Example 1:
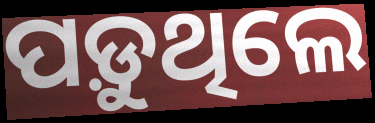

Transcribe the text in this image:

ପଡ଼ୁଥିଲେ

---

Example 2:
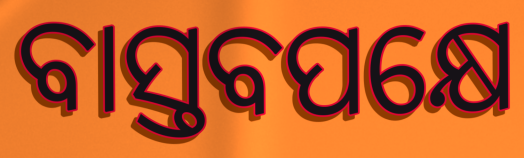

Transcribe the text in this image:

ବାସ୍ତବପକ୍ଷେ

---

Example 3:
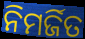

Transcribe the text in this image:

ନିମର୍ଜିତ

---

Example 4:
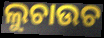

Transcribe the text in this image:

ଲୁଚାଉଚ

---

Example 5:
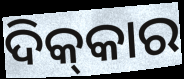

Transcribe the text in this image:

ଦିକ୍‌କାର